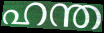
ഹന്ത